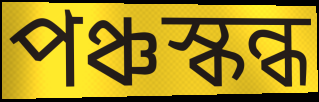
পঞ্চস্কন্ধ